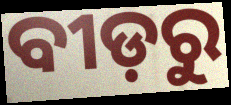
ବୀଡ଼ରୁ